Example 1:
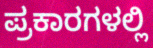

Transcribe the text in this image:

ಪ್ರಕಾರಗಳಲ್ಲಿ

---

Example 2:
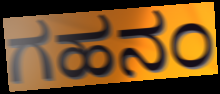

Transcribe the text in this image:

ಗಹನಂ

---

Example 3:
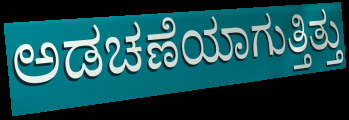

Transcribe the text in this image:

ಅಡಚಣೆಯಾಗುತ್ತಿತ್ತು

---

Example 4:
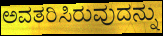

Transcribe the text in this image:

ಅವತರಿಸಿರುವುದನ್ನು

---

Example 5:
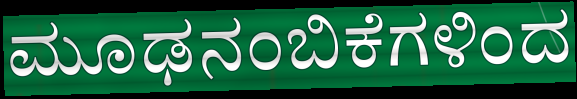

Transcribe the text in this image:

ಮೂಢನಂಬಿಕೆಗಳಿಂದ